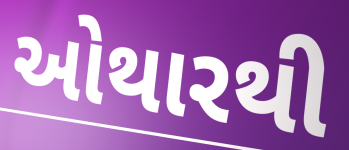
ઓથારથી